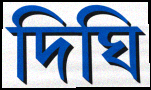
দিঘি